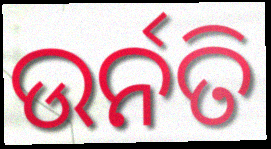
ଉର୍ନତି